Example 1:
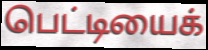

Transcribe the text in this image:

பெட்டியைக்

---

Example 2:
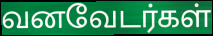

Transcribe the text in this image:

வனவேடர்கள்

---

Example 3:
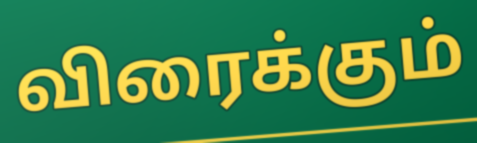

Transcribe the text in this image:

விரைக்கும்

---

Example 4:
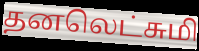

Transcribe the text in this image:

தனலெட்சுமி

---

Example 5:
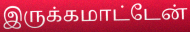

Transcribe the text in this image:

இருக்கமாட்டேன்